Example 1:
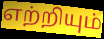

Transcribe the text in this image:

எற்றியும்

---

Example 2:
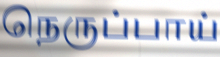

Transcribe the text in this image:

நெருப்பாய்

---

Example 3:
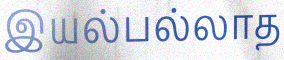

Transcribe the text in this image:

இயல்பல்லாத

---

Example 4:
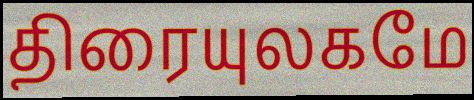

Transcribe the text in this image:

திரையுலகமே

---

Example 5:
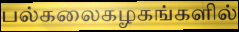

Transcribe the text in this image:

பல்கலைகழகங்களில்